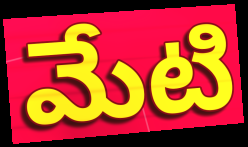
మేటి